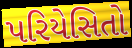
પરિયેસિતો